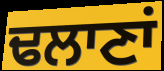
ਢਲਾਣਾਂ